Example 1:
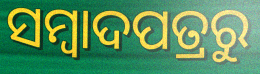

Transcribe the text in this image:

ସମ୍ବାଦପତ୍ରରୁ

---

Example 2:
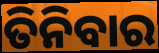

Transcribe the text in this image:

ତିନିବାର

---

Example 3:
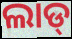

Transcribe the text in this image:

ଲାଡ୍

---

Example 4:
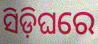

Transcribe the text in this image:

ସିଡ଼ିଘରେ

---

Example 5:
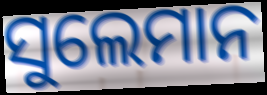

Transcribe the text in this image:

ସୁଲେମାନ